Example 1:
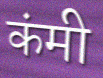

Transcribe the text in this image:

कंमी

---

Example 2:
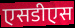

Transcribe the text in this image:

एसडीएस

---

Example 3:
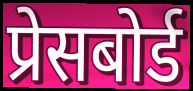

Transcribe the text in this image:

प्रेसबोर्ड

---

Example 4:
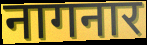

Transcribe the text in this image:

नागनार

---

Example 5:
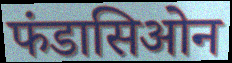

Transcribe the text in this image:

फंडासिओन